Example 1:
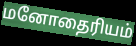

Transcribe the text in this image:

மனோதைரியம்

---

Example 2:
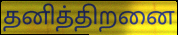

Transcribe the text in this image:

தனித்திறனை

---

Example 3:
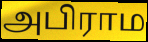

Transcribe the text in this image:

அபிராம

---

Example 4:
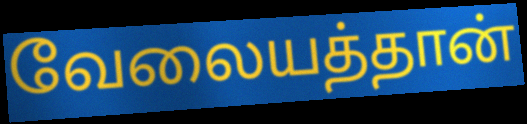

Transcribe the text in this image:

வேலையத்தான்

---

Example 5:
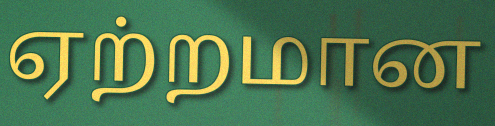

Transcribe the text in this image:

ஏற்றமான